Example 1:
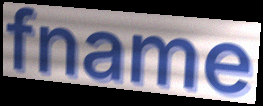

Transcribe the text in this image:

fname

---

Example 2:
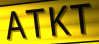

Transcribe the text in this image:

ATKT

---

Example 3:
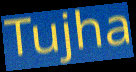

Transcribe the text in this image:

Tujha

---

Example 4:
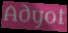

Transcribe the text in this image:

Adyot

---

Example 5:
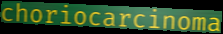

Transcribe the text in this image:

choriocarcinoma